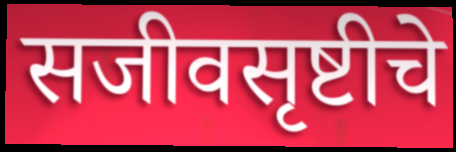
सजीवसृष्टीचे